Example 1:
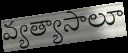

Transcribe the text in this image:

వ్యత్యాసాలూ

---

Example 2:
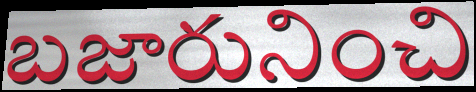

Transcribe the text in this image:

బజారునించి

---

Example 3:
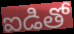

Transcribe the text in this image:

ఐడితో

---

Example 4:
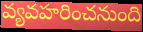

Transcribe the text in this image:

వ్యవహరించనుంది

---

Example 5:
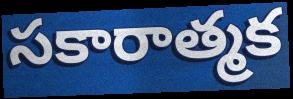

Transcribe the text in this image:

సకారాత్మక